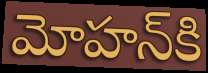
మోహన్‌కి